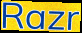
Razr